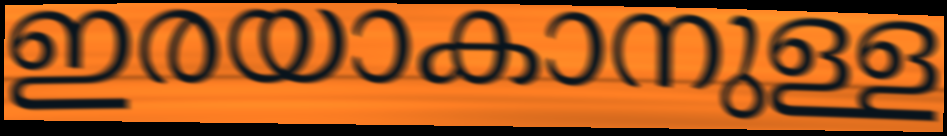
ഇരയാകാനുള്ള